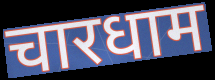
चारधाम